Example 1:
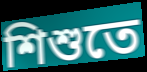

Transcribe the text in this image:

শিশুতে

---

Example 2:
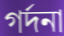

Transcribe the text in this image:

গর্দনা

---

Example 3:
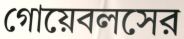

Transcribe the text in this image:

গোয়েবলসের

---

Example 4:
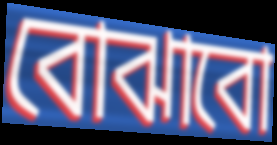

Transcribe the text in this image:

বোঝাবো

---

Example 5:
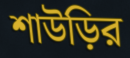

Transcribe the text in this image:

শাউড়ির